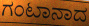
ಗಂಟಾನಾದ